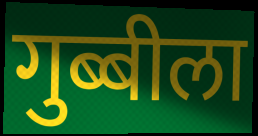
गुब्बीला